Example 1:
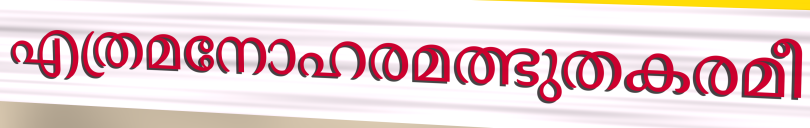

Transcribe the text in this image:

എത്രമനോഹരമത്ഭുതകരമീ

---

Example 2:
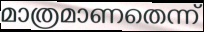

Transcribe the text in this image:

മാത്രമാണതെന്ന്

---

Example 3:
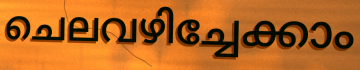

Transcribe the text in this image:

ചെലവഴിച്ചേക്കാം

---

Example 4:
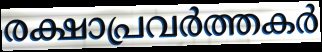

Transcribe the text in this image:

രക്ഷാപ്രവർത്തകർ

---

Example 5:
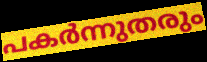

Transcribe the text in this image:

പകർന്നുതരും